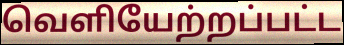
வெளியேற்றப்பட்ட